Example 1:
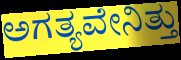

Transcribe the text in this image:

ಅಗತ್ಯವೇನಿತ್ತು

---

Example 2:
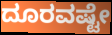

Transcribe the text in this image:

ದೂರವಷ್ಟೇ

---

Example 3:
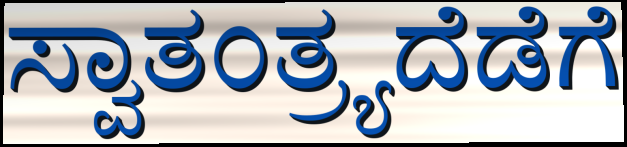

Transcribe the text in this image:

ಸ್ವಾತಂತ್ರ್ಯದೆಡೆಗೆ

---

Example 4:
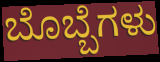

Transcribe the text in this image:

ಬೊಬ್ಬೆಗಳು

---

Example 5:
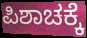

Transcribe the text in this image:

ಪಿಶಾಚಕ್ಕೆ